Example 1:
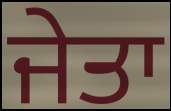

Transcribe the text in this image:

ਜੇਤਾ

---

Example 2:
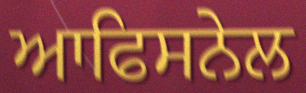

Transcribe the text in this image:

ਆਫਿਸਨੇਲ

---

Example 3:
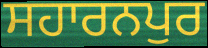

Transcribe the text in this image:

ਸਹਾਰਨਪੁਰ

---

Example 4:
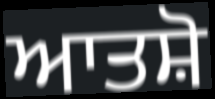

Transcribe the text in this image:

ਆਤਸ਼ੋ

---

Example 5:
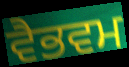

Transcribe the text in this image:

ਵੈਭਵਮ